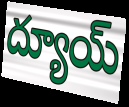
ద్యూయ్